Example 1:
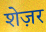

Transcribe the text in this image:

शेज़र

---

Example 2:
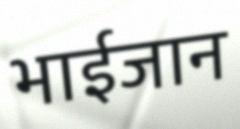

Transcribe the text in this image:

भाईजान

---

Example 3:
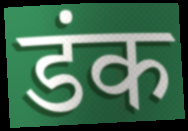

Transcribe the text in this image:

डंक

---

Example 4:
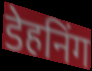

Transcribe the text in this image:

डेहनिंग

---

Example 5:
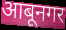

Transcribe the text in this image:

आबूनगर